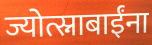
ज्योत्स्नाबाईंना